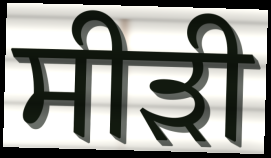
ਸੀੜੀ